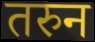
तरुन